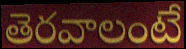
తెరవాలంటే